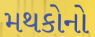
મથકોનો